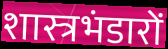
शास्त्रभंडारों